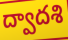
ద్వాదశి